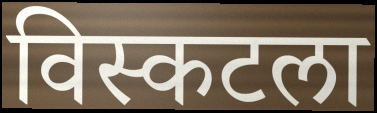
विस्कटला